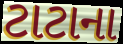
ટાટાના